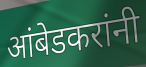
आंबेडकरांनी